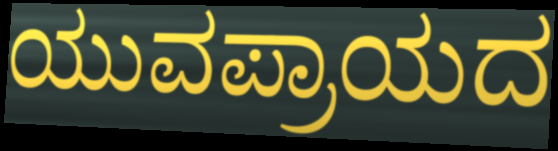
ಯುವಪ್ರಾಯದ